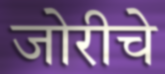
जोरीचे